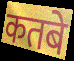
कतबे